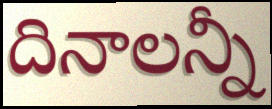
దినాలన్నీ